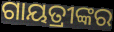
ଗାୟତ୍ରୀଙ୍କର